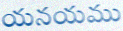
యనయము